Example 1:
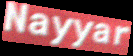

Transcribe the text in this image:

Nayyar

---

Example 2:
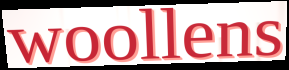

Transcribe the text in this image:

woollens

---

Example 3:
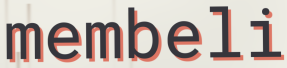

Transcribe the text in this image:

membeli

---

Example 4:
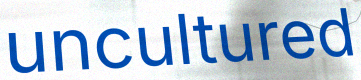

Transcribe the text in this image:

uncultured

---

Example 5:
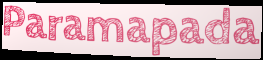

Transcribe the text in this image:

Paramapada